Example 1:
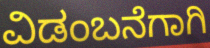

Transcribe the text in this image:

ವಿಡಂಬನೆಗಾಗಿ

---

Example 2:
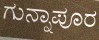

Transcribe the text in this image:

ಗುನ್ನಾಪೂರ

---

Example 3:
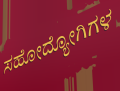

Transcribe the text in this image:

ಸಹೋದ್ಯೋಗಿಗಳ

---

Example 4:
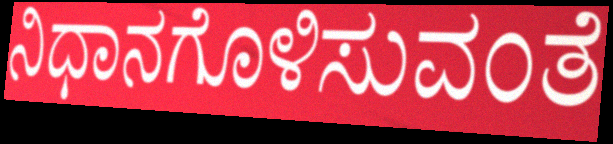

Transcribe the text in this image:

ನಿಧಾನಗೊಳಿಸುವಂತೆ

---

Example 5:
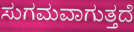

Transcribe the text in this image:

ಸುಗಮವಾಗುತ್ತದೆ